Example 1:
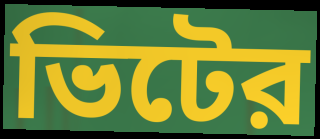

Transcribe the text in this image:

ভিটের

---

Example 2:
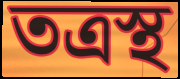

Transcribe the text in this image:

তত্রস্থ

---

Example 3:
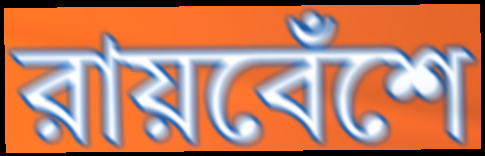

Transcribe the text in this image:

রায়বেঁশে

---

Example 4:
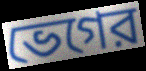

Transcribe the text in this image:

ভেগের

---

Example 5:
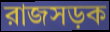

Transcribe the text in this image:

রাজসড়ক